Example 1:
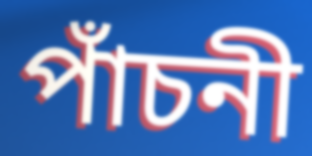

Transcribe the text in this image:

পাঁচনী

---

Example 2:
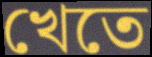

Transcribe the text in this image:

খেতে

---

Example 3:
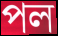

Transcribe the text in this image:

পল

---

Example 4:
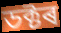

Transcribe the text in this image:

ডক্টৰ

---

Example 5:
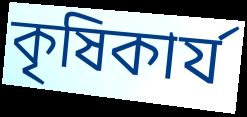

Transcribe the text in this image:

কৃষিকাৰ্য